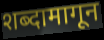
शब्दामागून